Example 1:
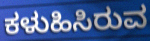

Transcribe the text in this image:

ಕಳುಹಿಸಿರುವ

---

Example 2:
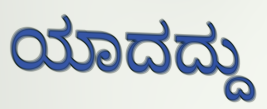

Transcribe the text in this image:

ಯಾದದ್ದು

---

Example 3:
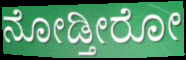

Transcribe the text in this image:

ನೋಡ್ತೀರೋ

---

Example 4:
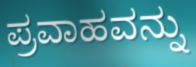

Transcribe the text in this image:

ಪ್ರವಾಹವನ್ನು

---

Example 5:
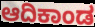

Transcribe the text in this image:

ಆದಿಕಾಂಡ